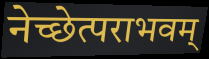
नेच्छेत्पराभवम्